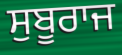
ਸੁਬੂਰਾਜ